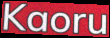
Kaoru